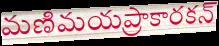
మణిమయప్రాకారకన్